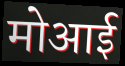
मोआई